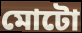
মোটো